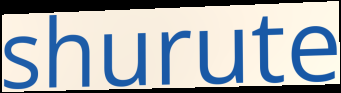
shurute